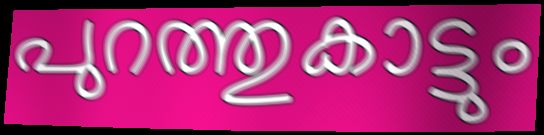
പുറത്തുകാട്ടും